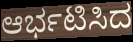
ಆರ್ಭಟಿಸಿದ